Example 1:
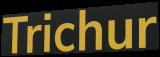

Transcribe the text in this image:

Trichur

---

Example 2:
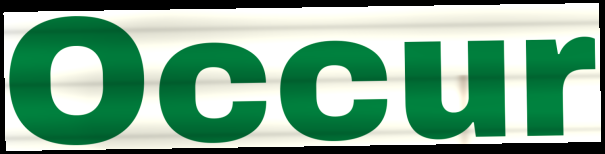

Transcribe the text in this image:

Occur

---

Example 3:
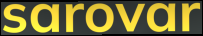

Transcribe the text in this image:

sarovar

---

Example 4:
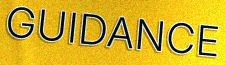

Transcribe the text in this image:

GUIDANCE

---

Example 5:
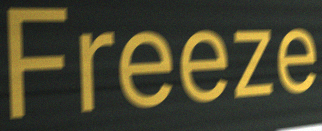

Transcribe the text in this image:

Freeze